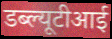
डब्ल्यूटीआई